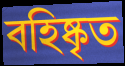
বহিষ্কৃত